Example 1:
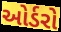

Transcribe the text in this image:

ઓર્ડરો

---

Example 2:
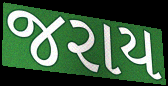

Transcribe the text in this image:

જરાય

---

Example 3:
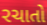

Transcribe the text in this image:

રચાતો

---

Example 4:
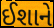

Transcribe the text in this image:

ઈશાને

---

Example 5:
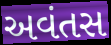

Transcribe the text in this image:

અવંતસ